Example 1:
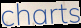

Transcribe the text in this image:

charts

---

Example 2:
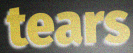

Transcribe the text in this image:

tears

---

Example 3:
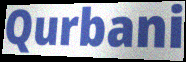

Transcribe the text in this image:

Qurbani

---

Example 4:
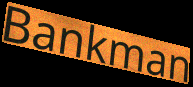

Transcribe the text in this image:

Bankman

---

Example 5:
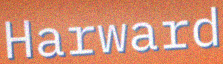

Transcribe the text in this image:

Harward